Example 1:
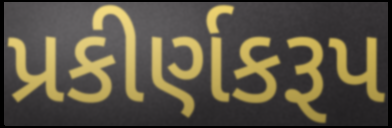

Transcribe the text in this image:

પ્રકીર્ણકરૂપ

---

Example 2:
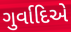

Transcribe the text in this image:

ગુર્વાદિએ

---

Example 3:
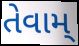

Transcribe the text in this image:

તેવામ્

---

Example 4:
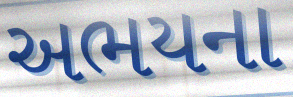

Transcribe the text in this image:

અભયના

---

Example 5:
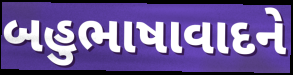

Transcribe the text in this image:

બહુભાષાવાદને